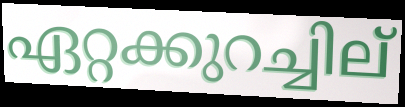
ഏറ്റക്കുറച്ചില്